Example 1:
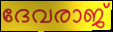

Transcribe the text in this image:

ദേവരാജ്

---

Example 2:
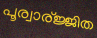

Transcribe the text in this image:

പൂര്വാര്ജ്ജിത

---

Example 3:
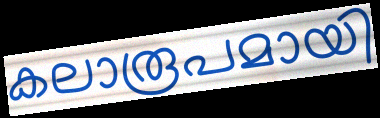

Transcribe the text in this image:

കലാരൂപമായി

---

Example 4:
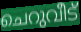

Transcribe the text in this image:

ചെറുവീട്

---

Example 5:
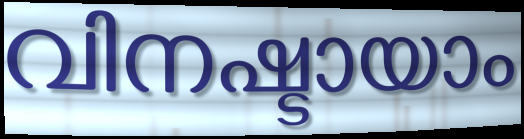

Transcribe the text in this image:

വിനഷ്ടായാം